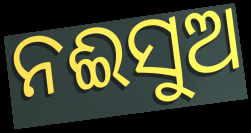
ନଈସୁଅ